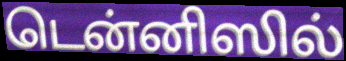
டென்னிஸில்